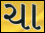
ચા